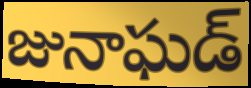
జునాఘడ్